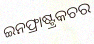
ଇନଫ୍ରାଷ୍ଟ୍ରକଚର